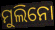
ମୁଲିନୋ